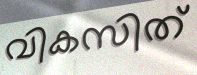
വികസിത്